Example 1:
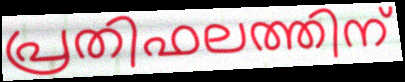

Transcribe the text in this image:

പ്രതിഫലത്തിന്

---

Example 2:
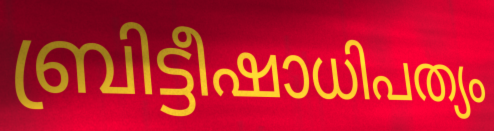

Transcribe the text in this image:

ബ്രിട്ടീഷാധിപത്യം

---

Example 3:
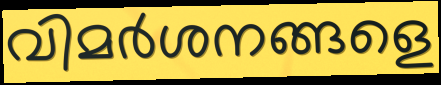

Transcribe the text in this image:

വിമർശനങ്ങളെ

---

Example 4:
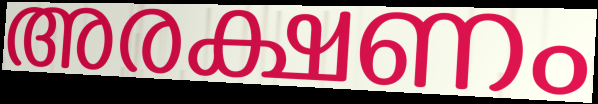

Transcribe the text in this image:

അരക്ഷണം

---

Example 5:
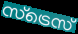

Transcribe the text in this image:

സ്ട്രെസ്